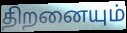
திறனையும்